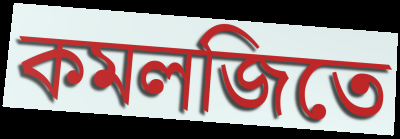
কমলজিতে